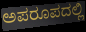
ಅಪರೂಪದಲ್ಲಿ